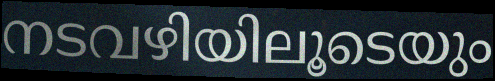
നടവഴിയിലൂടെയും